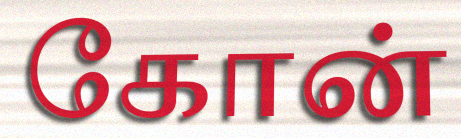
கோன்